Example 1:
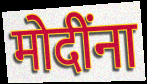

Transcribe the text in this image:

मोदींना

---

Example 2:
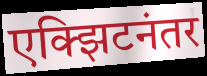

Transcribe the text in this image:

एक्झिटनंतर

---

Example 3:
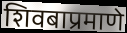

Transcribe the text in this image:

शिवबाप्रमाणे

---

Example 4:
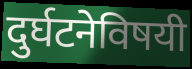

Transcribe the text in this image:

दुर्घटनेविषयी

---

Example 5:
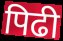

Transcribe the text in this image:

पिढी